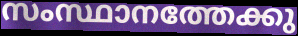
സംസ്ഥാനത്തേക്കു